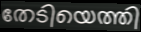
തേടിയെത്തി